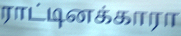
ராட்டினக்காரா